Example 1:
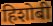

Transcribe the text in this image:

हिशोबी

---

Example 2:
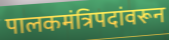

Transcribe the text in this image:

पालकमंत्रिपदांवरून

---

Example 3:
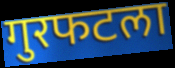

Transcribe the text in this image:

गुरफटला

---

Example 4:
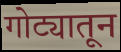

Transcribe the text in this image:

गोट्यातून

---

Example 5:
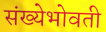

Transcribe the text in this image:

संख्येभोवती